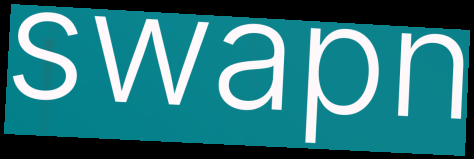
swapn